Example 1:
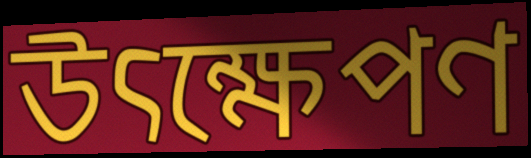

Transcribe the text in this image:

উৎক্ষেপণ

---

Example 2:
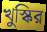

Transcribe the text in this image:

খুস্কির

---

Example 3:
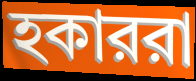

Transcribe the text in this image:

হকাররা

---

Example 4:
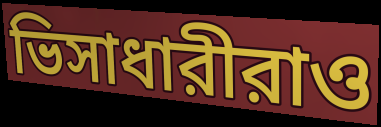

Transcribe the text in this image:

ভিসাধারীরাও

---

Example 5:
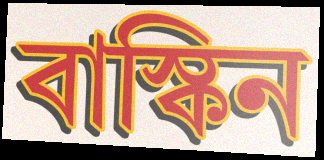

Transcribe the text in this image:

বাস্কিন